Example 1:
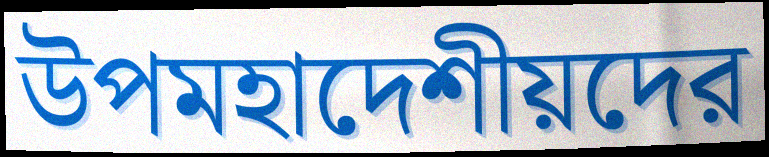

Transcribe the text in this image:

উপমহাদেশীয়দের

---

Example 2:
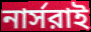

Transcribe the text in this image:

নার্সরাই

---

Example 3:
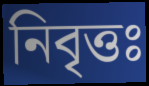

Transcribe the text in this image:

নিবৃত্তঃ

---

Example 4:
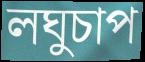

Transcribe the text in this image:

লঘুচাপ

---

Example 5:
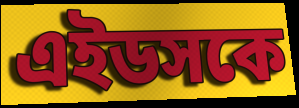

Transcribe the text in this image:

এইডসকে